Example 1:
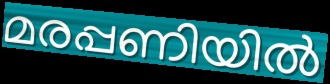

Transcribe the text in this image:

മരപ്പണിയിൽ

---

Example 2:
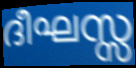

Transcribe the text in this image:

ദീഘസ്സ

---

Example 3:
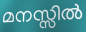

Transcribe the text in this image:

മനസ്സിൽ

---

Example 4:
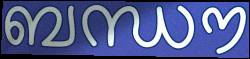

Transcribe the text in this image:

ബന്ധൗ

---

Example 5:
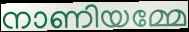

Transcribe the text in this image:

നാണിയമ്മേ